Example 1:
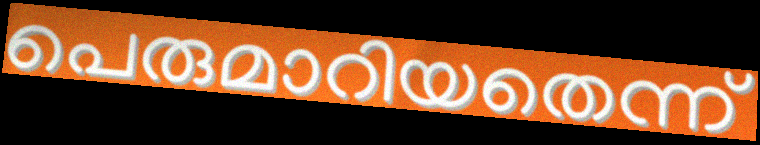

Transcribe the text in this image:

പെരുമാറിയതെന്ന്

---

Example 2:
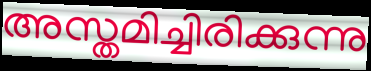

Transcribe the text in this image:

അസ്തമിച്ചിരിക്കുന്നു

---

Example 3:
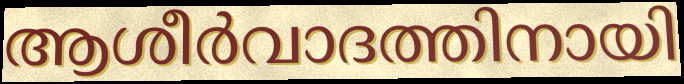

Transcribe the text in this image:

ആശീർവാദത്തിനായി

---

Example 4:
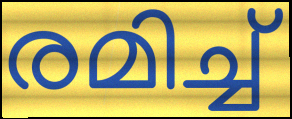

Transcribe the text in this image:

രമിച്ച്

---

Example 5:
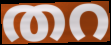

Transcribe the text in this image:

തറ